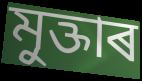
মুক্তাৰ